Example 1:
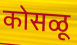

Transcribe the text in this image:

कोसळू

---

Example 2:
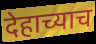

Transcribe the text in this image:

देहाच्याच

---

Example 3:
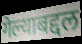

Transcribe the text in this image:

गेल्याबद्दल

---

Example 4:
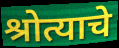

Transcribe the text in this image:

श्रोत्याचे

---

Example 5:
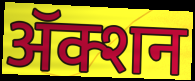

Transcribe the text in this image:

ॲक्शन